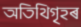
অতিথিগৃহৰ